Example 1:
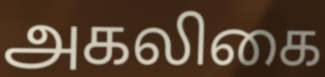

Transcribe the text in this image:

அகலிகை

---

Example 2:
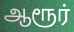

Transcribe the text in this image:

ஆரூர்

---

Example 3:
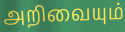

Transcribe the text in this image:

அறிவையும்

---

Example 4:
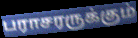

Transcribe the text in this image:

பராசரருக்கும்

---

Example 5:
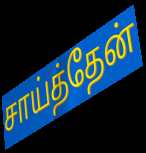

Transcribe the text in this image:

சாய்த்தேன்